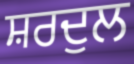
ਸ਼ਰਦੁਲ